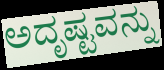
ಅದೃಷ್ಟವನ್ನು